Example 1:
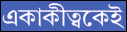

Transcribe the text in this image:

একাকীত্বকেই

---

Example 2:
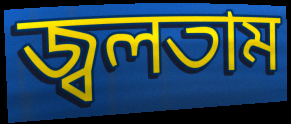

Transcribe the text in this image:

জ্বলতাম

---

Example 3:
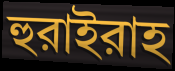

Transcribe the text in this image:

হুরাইরাহ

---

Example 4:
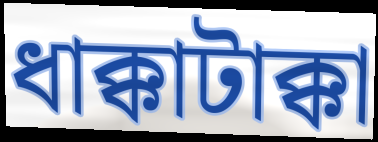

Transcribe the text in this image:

ধাক্কাটাক্কা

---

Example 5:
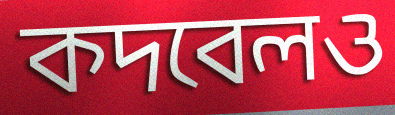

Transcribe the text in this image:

কদবেলও